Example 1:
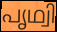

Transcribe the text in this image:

പൃഥ്വി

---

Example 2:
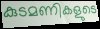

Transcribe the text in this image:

കുടമണികളുടെ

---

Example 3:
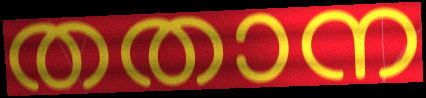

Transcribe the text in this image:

തതാന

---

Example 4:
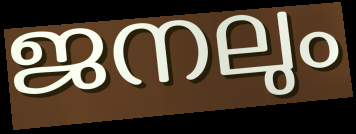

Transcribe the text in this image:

ജനലും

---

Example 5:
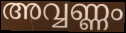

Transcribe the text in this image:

അവ്വണ്ണം